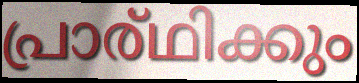
പ്രാര്ഥിക്കും